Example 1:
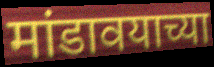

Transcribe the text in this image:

मांडावयाच्या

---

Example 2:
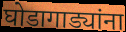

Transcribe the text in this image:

घोडागाड्यांना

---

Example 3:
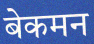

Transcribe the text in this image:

बेकमन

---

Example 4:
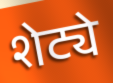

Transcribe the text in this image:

शेट्ये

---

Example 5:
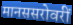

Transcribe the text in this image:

मानससरोवरीं